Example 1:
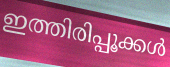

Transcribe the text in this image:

ഇത്തിരിപ്പൂക്കൾ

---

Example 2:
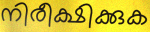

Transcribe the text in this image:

നിരീക്ഷിക്കുക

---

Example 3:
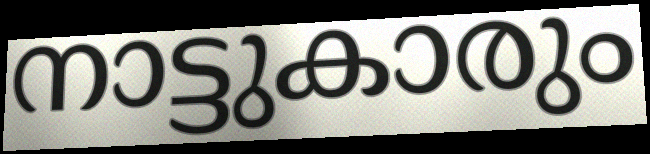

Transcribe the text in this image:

നാട്ടുകാരും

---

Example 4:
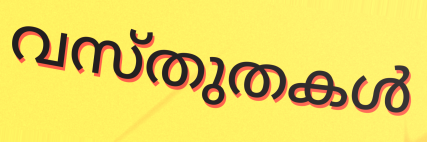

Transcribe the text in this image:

വസ്തുതകൾ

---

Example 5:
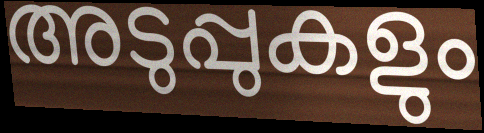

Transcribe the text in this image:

അടുപ്പുകളും